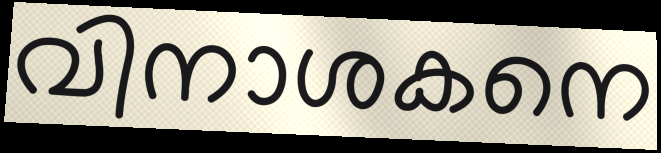
വിനാശകനെ